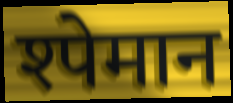
श्पेमान